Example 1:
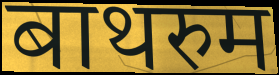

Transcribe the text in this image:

बाथरुम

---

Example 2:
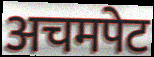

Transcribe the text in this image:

अचमपेट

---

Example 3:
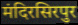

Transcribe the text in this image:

मंदिरसिरपुर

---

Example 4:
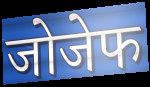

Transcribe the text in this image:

जोजेफ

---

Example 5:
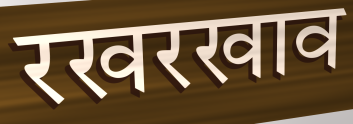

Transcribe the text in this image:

रखरखाव